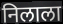
निलाला